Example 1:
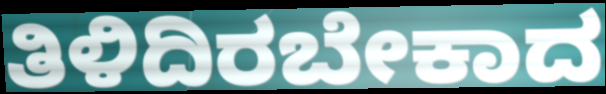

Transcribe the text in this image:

ತಿಳಿದಿರಬೇಕಾದ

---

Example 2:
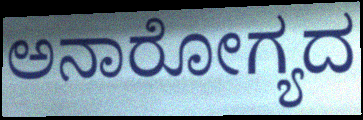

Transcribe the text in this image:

ಅನಾರೋಗ್ಯದ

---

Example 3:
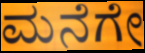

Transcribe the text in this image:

ಮನೆಗೇ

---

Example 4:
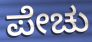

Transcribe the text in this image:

ಪೇಚು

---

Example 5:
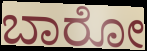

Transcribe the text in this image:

ಬಾರೋ